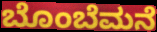
ಬೊಂಬೆಮನೆ